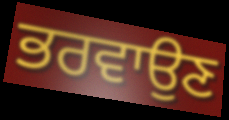
ਭਰਵਾਉਣ